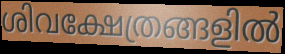
ശിവക്ഷേത്രങ്ങളിൽ